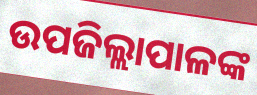
ଉପଜିଲ୍ଲାପାଳଙ୍କ